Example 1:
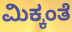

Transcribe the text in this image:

ಮಿಕ್ಕಂತೆ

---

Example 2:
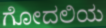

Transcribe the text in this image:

ಗೋದಲಿಯ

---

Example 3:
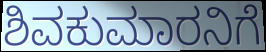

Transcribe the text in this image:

ಶಿವಕುಮಾರನಿಗೆ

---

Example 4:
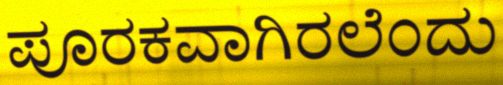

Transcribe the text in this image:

ಪೂರಕವಾಗಿರಲೆಂದು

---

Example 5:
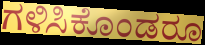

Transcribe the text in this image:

ಗಳಿಸಿಕೊಂಡರೂ